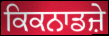
ਕਿਕਨਾਡਜ਼ੇ